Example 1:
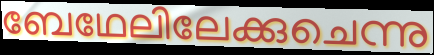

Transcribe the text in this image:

ബേഥേലിലേക്കുചെന്നു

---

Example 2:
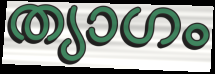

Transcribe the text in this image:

ത്യാഗം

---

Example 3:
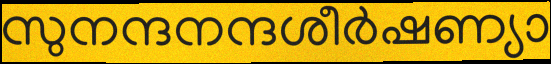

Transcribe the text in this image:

സുനന്ദനന്ദശീർഷണ്യാ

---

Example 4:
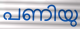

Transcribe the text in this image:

പണിയു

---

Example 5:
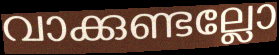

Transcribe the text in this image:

വാക്കുണ്ടല്ലോ